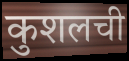
कुशलची